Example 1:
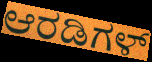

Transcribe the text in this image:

ಆರಡಿಗಳ್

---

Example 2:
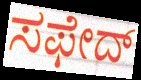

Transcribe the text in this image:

ಸಫೇದ್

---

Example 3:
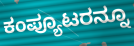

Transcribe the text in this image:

ಕಂಪ್ಯೂಟರನ್ನೂ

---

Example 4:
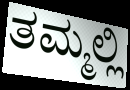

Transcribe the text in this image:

ತಮ್ಮಲ್ಲಿ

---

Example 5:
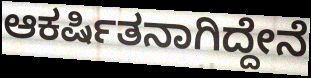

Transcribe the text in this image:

ಆಕರ್ಷಿತನಾಗಿದ್ದೇನೆ